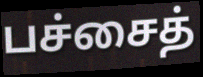
பச்சைத்